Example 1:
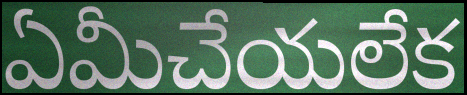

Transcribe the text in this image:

ఏమీచేయలేక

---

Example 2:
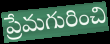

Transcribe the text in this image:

ప్రేమగురించి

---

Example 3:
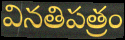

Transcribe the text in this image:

వినతిపత్రం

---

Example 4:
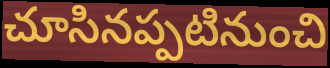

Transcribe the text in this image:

చూసినప్పటినుంచి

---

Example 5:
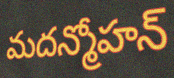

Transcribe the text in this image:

మదన్మోహన్